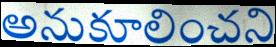
అనుకూలించని